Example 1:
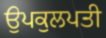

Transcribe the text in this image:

ਉਪਕੁਲਪਤੀ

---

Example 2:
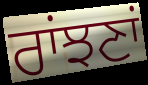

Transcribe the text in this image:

ਰਾਂਝਣਾਂ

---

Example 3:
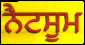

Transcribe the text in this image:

ਨੈਟਸੂਮ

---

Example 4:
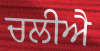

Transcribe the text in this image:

ਚਲੀਐ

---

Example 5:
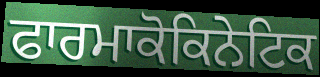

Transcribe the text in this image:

ਫਾਰਮਾਕੋਕਿਨੇਟਿਕ